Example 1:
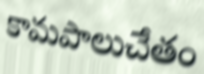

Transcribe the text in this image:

కామపాలుచేతం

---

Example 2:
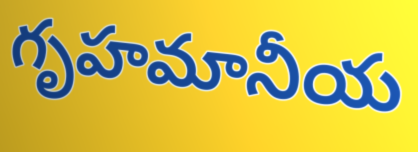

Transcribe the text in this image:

గృహమానీయ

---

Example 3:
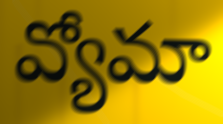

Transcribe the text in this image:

వ్యోమా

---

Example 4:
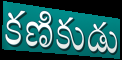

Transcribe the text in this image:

కణికుడు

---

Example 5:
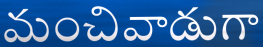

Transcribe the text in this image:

మంచివాడుగా